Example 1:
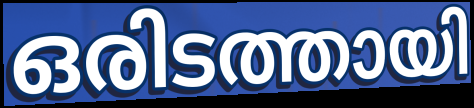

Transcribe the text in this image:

ഒരിടത്തായി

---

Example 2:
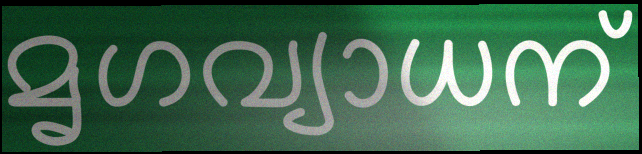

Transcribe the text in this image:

മൃഗവ്യാധന്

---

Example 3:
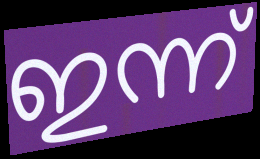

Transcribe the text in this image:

ഇന്ന്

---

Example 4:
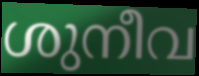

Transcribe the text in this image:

ശുനീവ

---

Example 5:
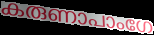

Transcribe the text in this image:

കരുണാപാംഗേ